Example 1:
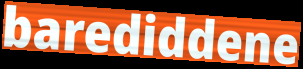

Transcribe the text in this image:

barediddene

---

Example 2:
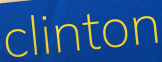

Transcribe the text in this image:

clinton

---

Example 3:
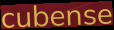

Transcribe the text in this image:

cubense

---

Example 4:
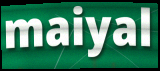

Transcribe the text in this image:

maiyal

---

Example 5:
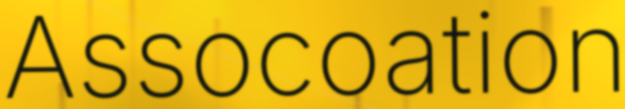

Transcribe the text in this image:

Assocoation